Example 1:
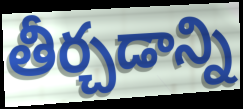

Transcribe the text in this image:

తీర్చడాన్ని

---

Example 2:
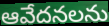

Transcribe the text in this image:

ఆవేదనలను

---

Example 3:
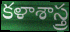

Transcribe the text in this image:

కళాశాస్త్ర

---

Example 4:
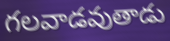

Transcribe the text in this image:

గలవాడవుతాడు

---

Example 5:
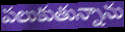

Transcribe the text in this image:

పలుకుతున్నాను